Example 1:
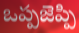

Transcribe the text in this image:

ఒప్పజెప్పి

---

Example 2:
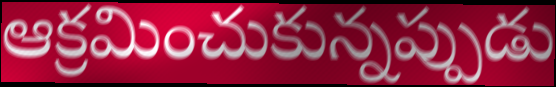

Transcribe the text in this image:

ఆక్రమించుకున్నప్పుడు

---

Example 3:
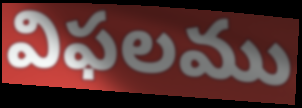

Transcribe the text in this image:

విఫలము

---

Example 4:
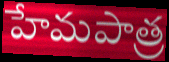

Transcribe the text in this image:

హేమపాత్ర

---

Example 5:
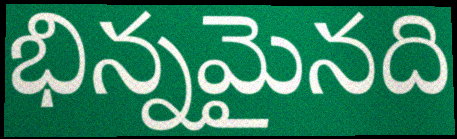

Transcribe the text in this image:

భిన్నమైనది